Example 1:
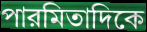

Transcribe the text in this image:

পারমিতাদিকে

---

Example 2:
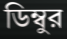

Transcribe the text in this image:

ডিম্বুর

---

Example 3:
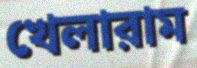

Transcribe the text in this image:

খেলারাম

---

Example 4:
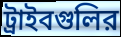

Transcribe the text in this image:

ট্রাইবগুলির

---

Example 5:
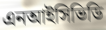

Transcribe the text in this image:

এনআইসিভিডি